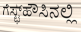
ಗೆಸ್ಟ್‌ಹೌಸಿನಲ್ಲಿ